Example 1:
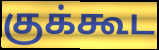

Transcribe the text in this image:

குக்கூட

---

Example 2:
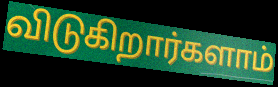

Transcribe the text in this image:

விடுகிறார்களாம்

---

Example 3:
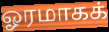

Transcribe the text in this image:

ஓரமாகக்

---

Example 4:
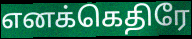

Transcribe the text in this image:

எனக்கெதிரே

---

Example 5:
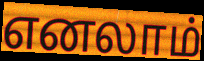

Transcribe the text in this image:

எனலாம்